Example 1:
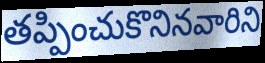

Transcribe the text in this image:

తప్పించుకొనినవారిని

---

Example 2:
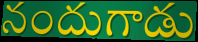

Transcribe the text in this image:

నందుగాడు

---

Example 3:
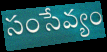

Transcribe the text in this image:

సంసేవ్యం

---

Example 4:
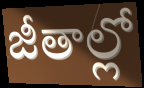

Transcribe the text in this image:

జీతాల్లో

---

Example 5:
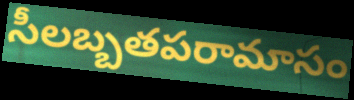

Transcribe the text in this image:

సీలబ్బతపరామాసం